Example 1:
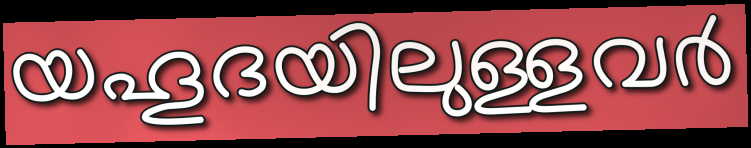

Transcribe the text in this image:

യഹൂദയിലുള്ളവർ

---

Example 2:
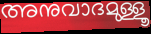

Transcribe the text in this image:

അനുവാദമുള്ളൂ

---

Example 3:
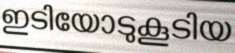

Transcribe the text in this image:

ഇടിയോടുകൂടിയ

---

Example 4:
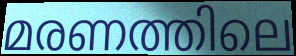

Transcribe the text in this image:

മരണത്തിലെ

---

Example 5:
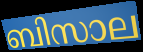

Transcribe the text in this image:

ബിസാല